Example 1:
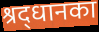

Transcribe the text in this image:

श्रद्धानका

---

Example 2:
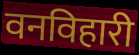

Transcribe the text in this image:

वनविहारी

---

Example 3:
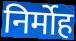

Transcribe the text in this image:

निर्मोह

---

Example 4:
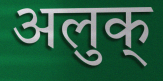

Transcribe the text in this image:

अलुक्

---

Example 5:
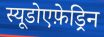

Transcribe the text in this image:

स्यूडोएफ़ेड्रिन